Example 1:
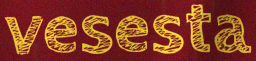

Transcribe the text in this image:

vesesta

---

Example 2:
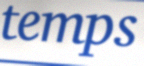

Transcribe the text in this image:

temps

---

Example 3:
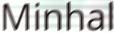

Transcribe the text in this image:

Minhal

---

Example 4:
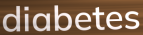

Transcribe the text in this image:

diabetes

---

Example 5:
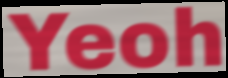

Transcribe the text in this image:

Yeoh